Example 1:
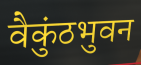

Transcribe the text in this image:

वैकुंठभुवन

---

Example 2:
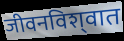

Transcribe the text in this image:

जीवनविश्वात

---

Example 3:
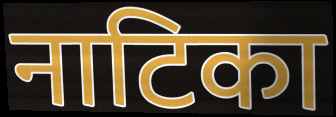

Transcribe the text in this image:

नाटिका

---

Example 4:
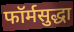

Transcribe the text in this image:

फॉर्मसुद्धा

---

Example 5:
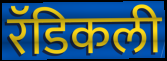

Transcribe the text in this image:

रॅडिकली